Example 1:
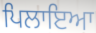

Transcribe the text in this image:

ਪਿਲਾਇਆ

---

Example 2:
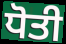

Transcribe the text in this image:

ਧੋਤੀ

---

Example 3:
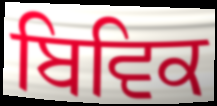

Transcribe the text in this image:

ਬਿਵਿਕ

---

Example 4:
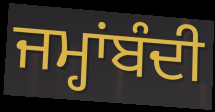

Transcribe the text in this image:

ਜਮ੍ਹਾਂਬੰਦੀ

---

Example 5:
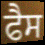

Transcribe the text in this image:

ਫੈਸ